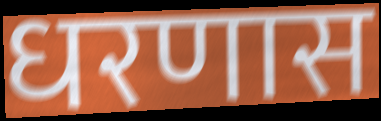
धरणास